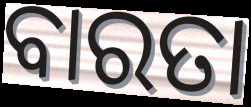
ବାରତା